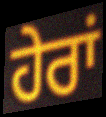
ਹੇਰਾਂ